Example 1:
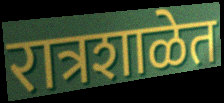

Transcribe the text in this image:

रात्रशाळेत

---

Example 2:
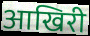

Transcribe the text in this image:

आखिरी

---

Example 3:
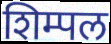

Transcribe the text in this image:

शिम्पल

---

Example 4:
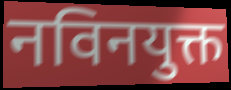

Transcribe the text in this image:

नविनयुक्त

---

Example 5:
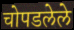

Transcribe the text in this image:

चोपडलेले